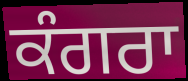
ਕੰਗਰਾ